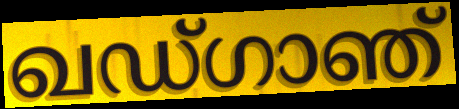
ഖഡ്ഗാഞ്